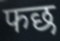
फछ